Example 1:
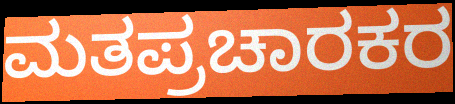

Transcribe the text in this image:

ಮತಪ್ರಚಾರಕರ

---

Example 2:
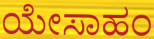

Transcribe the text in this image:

ಯೇಸಾಹಂ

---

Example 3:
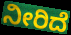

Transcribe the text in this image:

ನೀರಿದೆ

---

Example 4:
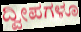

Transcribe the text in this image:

ದ್ವೀಪಗಳೂ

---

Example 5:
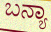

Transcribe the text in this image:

ಬನ್ಯಾ